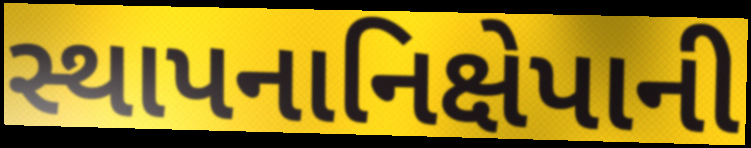
સ્થાપનાનિક્ષેપાની